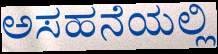
ಅಸಹನೆಯಲ್ಲಿ